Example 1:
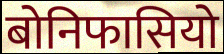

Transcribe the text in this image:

बोनिफासियो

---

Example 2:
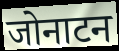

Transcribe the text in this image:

जोनाटन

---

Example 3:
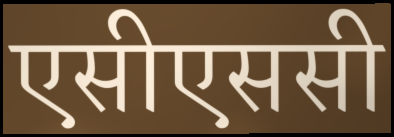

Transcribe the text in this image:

एसीएससी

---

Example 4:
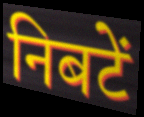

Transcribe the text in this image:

निबटें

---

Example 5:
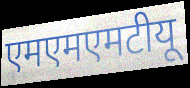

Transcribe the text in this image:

एमएमएमटीयू